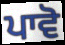
ਪਾਵੋ